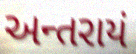
અન્તરાયં